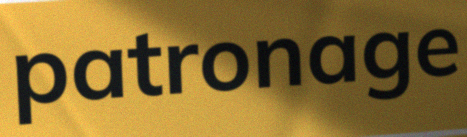
patronage